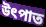
উৎপাত